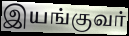
இயங்குவர்